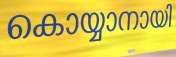
കൊയ്യാനായി